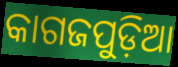
କାଗଜପୁଡ଼ିଆ